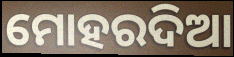
ମୋହରଦିଆ